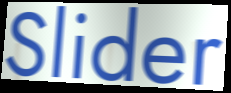
Slider